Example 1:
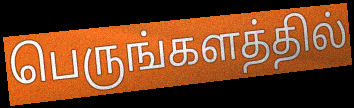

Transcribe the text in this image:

பெருங்களத்தில்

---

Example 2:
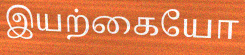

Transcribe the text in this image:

இயற்கையோ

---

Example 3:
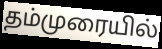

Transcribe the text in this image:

தம்முரையில்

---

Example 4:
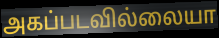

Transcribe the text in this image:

அகப்படவில்லையா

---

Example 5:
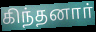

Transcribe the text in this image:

கிந்தனார்